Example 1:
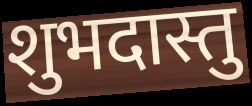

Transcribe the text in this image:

शुभदास्तु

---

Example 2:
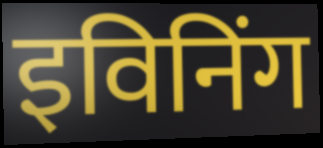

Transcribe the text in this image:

इविनिंग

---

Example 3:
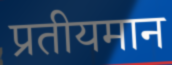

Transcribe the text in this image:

प्रतीयमान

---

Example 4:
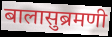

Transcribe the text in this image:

बालासुब्रमणी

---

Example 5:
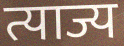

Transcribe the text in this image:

त्याज्य